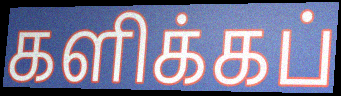
களிக்கப்